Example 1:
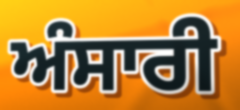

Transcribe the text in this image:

ਅੰਸਾਰੀ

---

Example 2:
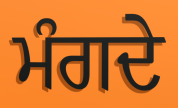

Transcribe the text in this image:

ਮੰਗਦੇ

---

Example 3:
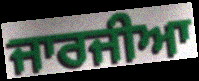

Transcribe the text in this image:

ਜਾਰਜੀਆ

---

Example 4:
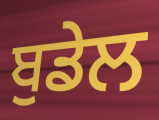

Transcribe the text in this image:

ਬੁਡੇਲ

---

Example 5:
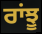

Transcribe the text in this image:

ਰਾਂਝੂ